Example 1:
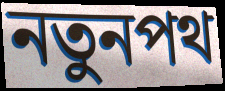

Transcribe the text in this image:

নতুনপথ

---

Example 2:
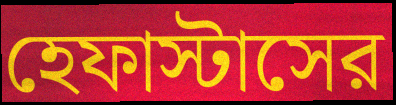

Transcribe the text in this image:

হেফাস্টাসের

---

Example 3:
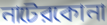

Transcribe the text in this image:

নাটেরকোনা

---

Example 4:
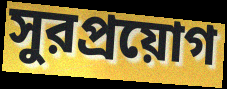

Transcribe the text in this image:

সুরপ্রয়োগ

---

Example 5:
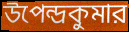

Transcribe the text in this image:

উপেন্দ্রকুমার